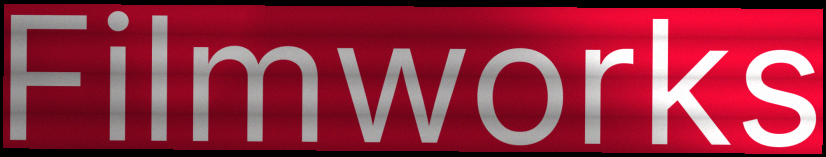
Filmworks